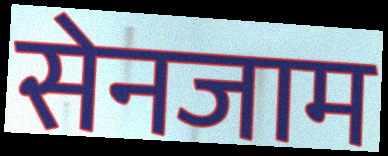
सेनजाम